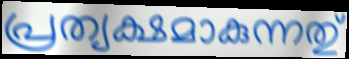
പ്രത്യക്ഷമാകുന്നതു്